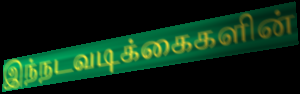
இந்நடவடிக்கைகளின்